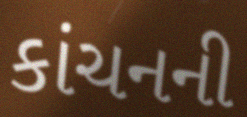
કાંચનની